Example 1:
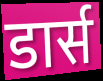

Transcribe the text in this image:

डार्स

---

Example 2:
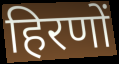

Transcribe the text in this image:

हिरणों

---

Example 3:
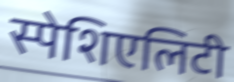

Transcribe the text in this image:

स्पेशिएलिटी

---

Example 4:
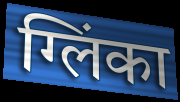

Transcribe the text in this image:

ग्लिंका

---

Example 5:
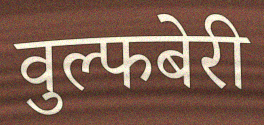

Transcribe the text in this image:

वुल्फबेरी